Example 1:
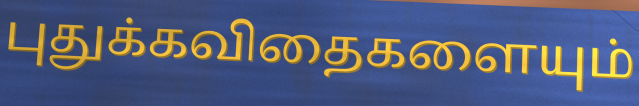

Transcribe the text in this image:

புதுக்கவிதைகளையும்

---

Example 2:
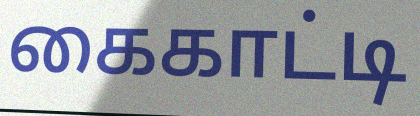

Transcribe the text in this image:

கைகாட்டி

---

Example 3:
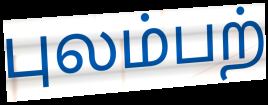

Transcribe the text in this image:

புலம்பற்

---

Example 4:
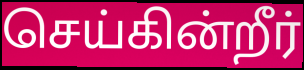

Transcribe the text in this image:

செய்கின்றீர்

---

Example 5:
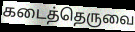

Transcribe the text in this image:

கடைத்தெருவை